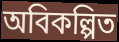
অবিকল্পিত